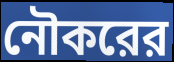
নৌকরের